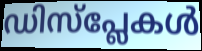
ഡിസ്പ്ലേകൾ